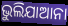
ଭୁଲିଯାଆନା